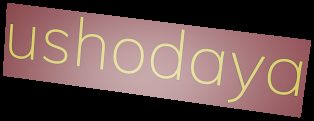
ushodaya